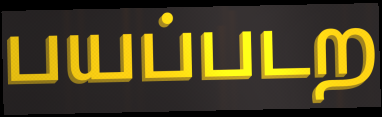
பயப்படற